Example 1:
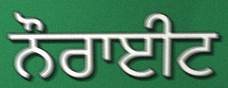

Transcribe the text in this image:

ਨੌਰਾਈਟ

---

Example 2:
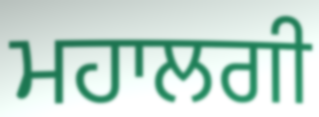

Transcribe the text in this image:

ਮਹਾਲਗੀ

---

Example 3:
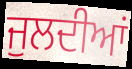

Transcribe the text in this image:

ਜੁਲਦੀਆਂ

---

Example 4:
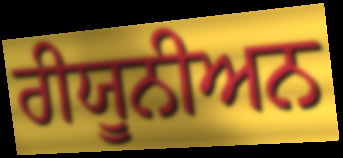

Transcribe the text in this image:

ਰੀਯੂਨੀਅਨ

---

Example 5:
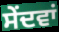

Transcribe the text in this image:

ਸੇਂਦਵਾਂ